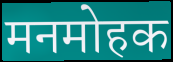
मनमोहक